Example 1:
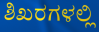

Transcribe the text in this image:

ಶಿಖರಗಳಲ್ಲಿ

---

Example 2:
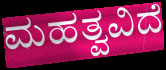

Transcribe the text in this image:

ಮಹತ್ವವಿದೆ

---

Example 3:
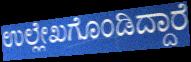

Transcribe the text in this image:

ಉಲ್ಲೇಖಗೊಂಡಿದ್ದಾರೆ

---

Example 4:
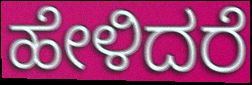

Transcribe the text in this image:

ಹೇಳಿದರೆ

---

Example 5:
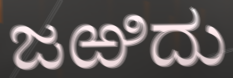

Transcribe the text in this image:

ಜಱಿದು